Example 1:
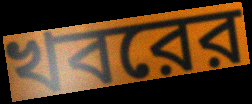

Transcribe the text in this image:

খবরের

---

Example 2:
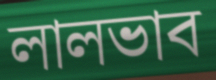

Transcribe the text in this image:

লালভাব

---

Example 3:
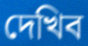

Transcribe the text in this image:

দেখিব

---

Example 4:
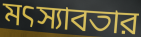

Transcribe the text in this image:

মৎস্যাবতার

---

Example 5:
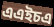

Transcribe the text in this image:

এএইচএ